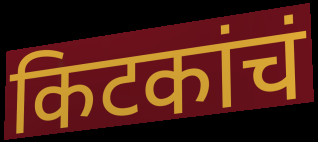
किटकांचं